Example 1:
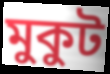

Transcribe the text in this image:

মুকুট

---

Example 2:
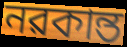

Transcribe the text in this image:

নৱকান্ত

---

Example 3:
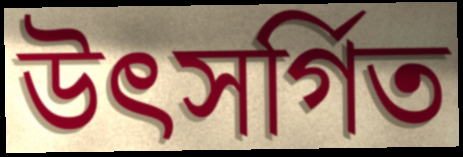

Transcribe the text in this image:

উৎসৰ্গিত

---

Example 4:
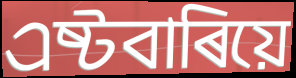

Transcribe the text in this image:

এষ্টবাৰিয়ে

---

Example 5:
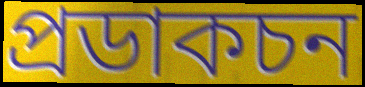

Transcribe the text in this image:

প্ৰডাকচন